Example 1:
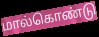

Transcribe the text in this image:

மால்கொண்டு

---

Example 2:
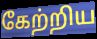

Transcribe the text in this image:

கேற்றிய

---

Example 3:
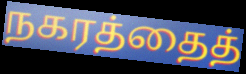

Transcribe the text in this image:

நகரத்தைத்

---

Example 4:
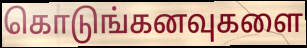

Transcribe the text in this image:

கொடுங்கனவுகளை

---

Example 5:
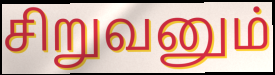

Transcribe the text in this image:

சிறுவனும்